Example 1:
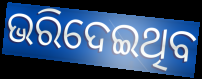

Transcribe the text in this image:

ଭରିଦେଇଥିବ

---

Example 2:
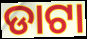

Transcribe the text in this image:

ଡାଟା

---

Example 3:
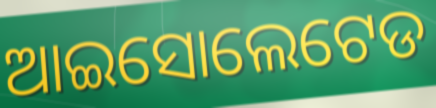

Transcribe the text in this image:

ଆଇସୋଲେଟେଡ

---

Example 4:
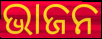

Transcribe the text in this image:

ଭାଜନ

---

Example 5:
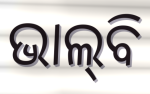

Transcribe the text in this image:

ଭାଲ୍‌ବି